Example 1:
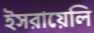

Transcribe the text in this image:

ইসরায়েলি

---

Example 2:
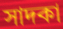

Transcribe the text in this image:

সাদকা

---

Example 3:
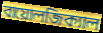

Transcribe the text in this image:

বায়োলজিক্যাল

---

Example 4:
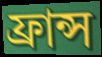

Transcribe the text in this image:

ফ্রান্স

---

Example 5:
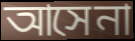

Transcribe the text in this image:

আসেনা